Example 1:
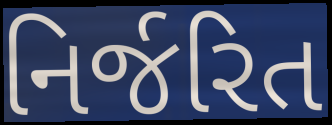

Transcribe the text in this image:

નિર્જરિત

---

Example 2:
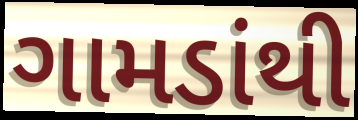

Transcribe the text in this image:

ગામડાંથી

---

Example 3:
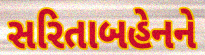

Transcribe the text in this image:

સરિતાબહેનને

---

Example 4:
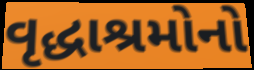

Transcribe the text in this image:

વૃદ્ધાશ્રમોનો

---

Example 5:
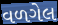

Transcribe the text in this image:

વળગેલ